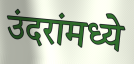
उंदरांमध्ये